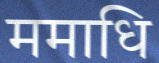
ममाधि